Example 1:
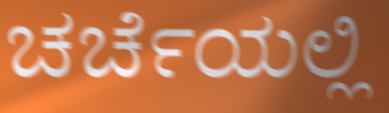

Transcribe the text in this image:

ಚರ್ಚೆಯಲ್ಲಿ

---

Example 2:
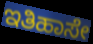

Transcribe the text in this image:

ಇತಿಹಾಸೇ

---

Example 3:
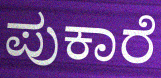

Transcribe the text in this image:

ಪುಕಾರೆ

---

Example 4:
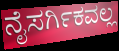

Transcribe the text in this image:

ನೈಸರ್ಗಿಕವಲ್ಲ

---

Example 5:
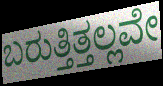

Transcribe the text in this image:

ಬರುತ್ತಿತ್ತಲ್ಲವೇ